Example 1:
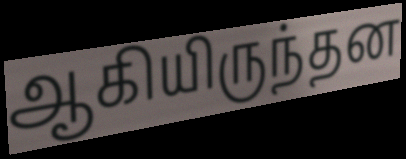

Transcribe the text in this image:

ஆகியிருந்தன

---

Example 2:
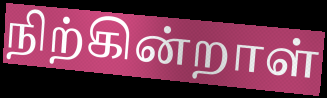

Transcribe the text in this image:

நிற்கின்றாள்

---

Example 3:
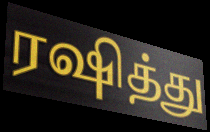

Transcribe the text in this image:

ரஷித்து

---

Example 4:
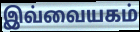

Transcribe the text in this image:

இவ்வையகம்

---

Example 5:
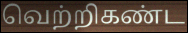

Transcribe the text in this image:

வெற்றிகண்ட